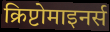
क्रिप्टोमाइनर्स